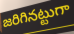
జరిగినట్టుగా